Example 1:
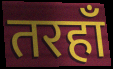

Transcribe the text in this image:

तरहाँ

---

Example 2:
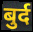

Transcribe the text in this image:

बुर्द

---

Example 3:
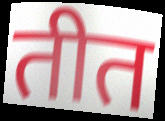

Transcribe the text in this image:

तीत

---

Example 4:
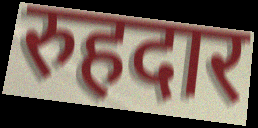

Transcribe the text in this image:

रुहदार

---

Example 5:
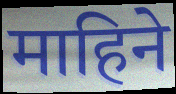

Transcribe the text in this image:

माहिने